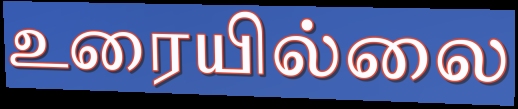
உரையில்லை